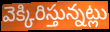
వెక్కిరిస్తున్నట్లు